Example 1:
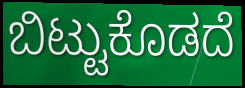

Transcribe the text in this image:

ಬಿಟ್ಟುಕೊಡದೆ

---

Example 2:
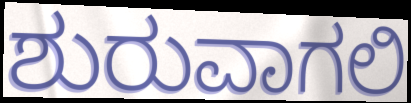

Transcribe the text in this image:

ಶುರುವಾಗಲಿ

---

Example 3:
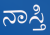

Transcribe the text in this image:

ನಾಸ್ತಿ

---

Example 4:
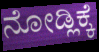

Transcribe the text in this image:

ನೋಡ್ಲಿಕ್ಕೆ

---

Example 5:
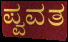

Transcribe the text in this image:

ಪ್ವವತ